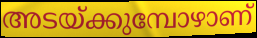
അടയ്ക്കുമ്പോഴാണ്